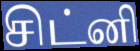
சிட்னி